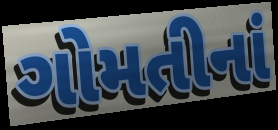
ગોમતીનાં